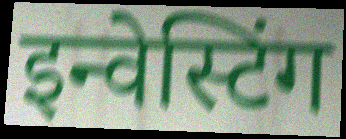
इन्वेस्टिंग